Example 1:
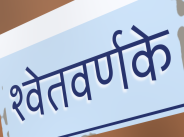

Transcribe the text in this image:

श्वेतवर्णके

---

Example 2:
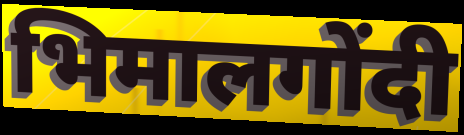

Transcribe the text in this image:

भिमालगोंदी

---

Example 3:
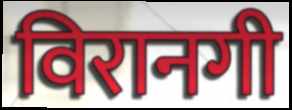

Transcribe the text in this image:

विरानगी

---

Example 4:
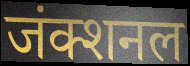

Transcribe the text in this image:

जंक्शनल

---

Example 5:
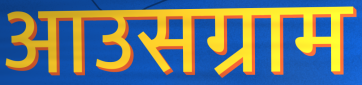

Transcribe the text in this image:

आउसग्राम